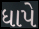
ધાપે